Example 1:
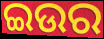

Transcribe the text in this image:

ଇଉର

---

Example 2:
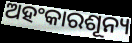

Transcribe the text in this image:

ଅହଂକାରଶୂନ୍ୟ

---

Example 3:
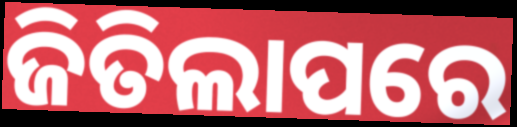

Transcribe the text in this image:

ଜିତିଲାପରେ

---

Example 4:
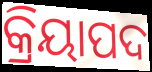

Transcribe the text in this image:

କ୍ରିୟାପଦ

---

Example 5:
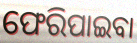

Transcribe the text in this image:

ଫେରିପାଇବା